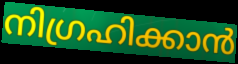
നിഗ്രഹിക്കാൻ